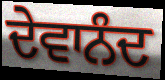
ਦੇਵਾਨੰਦ